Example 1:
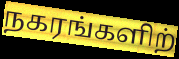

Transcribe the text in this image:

நகரங்களிற்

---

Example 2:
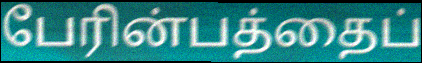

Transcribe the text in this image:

பேரின்பத்தைப்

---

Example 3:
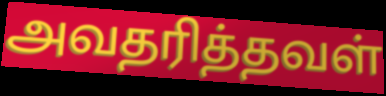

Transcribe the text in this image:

அவதரித்தவள்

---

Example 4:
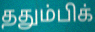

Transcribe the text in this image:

ததும்பிக்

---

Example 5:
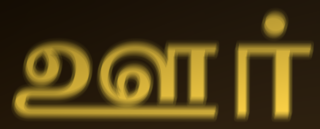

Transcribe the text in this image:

ஊர்